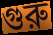
গুরু